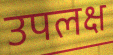
उपलक्ष